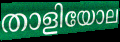
താളിയോല